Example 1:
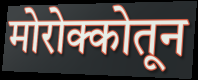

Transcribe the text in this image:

मोरोक्कोतून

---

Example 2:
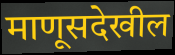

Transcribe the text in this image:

माणूसदेखील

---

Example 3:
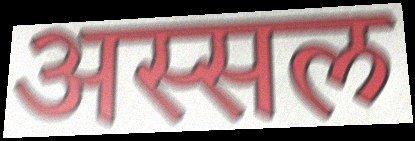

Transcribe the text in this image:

अस्सल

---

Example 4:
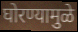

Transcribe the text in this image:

घोरण्यामुळे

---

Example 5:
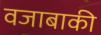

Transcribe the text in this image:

वजाबाकी